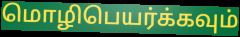
மொழிபெயர்க்கவும்